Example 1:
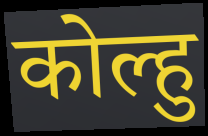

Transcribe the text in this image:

कोल्हु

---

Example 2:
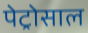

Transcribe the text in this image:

पेट्रोसाल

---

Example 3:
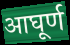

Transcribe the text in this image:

आघूर्ण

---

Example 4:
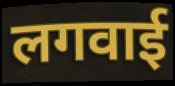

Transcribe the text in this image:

लगवाई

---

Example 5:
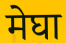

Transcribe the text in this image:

मेघा